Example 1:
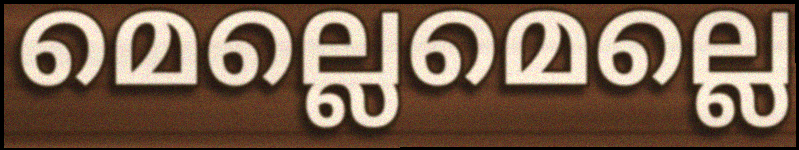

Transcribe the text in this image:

മെല്ലെമെല്ലെ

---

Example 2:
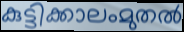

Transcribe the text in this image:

കുട്ടിക്കാലംമുതൽ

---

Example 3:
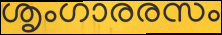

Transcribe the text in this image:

ശൃംഗാരരസം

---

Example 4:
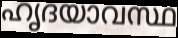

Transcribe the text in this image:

ഹൃദയാവസ്ഥ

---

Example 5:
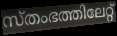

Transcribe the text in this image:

സ്തംഭത്തിലേറ്റ്